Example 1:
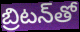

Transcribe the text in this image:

బ్రిటన్‌తో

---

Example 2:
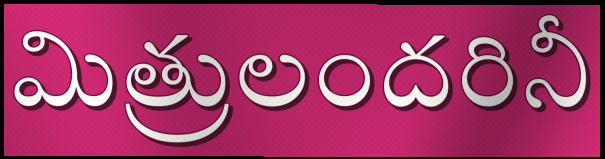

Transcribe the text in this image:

మిత్రులందరినీ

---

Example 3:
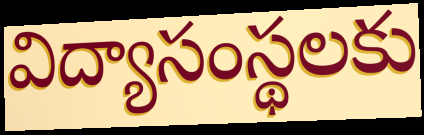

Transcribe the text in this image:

విద్యాసంస్థలకు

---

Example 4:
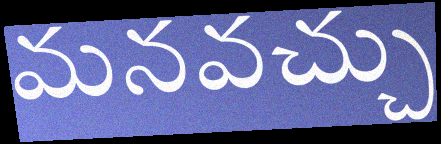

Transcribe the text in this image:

మనవచ్చు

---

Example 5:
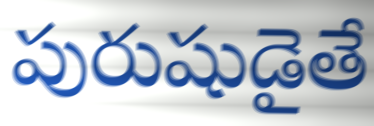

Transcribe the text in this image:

పురుషుడైతే